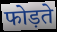
फोड़ते